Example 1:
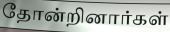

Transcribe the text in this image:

தோன்றினார்கள்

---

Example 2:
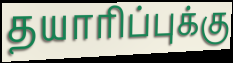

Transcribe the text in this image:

தயாரிப்புக்கு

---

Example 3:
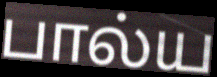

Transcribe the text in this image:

பால்ய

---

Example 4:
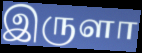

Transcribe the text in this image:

இருளா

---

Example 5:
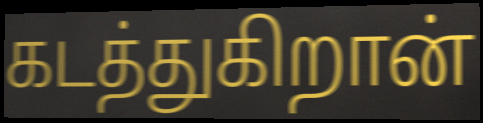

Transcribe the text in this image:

கடத்துகிறான்